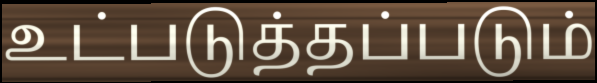
உட்படுத்தப்படும்